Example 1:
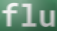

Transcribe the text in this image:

flu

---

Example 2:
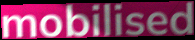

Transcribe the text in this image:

mobilised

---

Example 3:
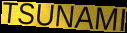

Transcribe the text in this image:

TSUNAMI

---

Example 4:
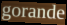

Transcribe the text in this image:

gorande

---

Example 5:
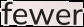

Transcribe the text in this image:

fewer